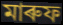
মাৰুফ